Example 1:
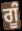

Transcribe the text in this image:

ਗੂੰ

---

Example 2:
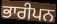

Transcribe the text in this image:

ਭਾਰੀਪਨ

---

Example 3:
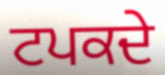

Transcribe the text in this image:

ਟਪਕਦੇ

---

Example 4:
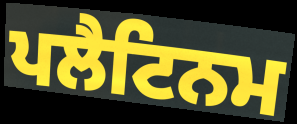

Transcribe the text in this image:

ਪਲੈਟਿਨਮ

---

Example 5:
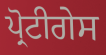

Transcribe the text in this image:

ਪ੍ਰੋਟੀਗੇਸ